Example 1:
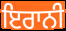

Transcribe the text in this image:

ਇਰਾਨੀ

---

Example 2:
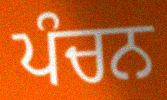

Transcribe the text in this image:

ਪੰਚਨ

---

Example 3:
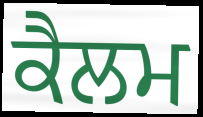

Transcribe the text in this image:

ਕੈਲਮ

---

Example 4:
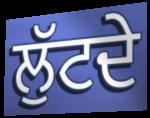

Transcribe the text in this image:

ਲੁੱਟਦੇ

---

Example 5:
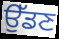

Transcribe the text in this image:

ਉੱਡਣ